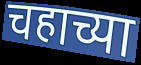
चहाच्या